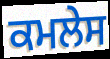
ਕਮਲੇਸ